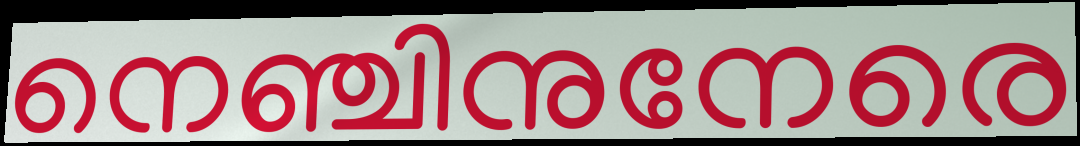
നെഞ്ചിനുനേരെ